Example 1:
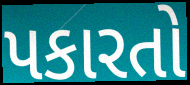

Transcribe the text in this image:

પકારતો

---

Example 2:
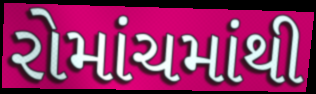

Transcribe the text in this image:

રોમાંચમાંથી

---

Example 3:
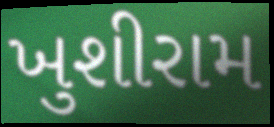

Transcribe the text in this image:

ખુશીરામ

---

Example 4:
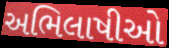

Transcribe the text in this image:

અભિલાષીઓ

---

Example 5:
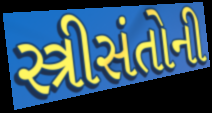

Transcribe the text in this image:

સ્ત્રીસંતોની